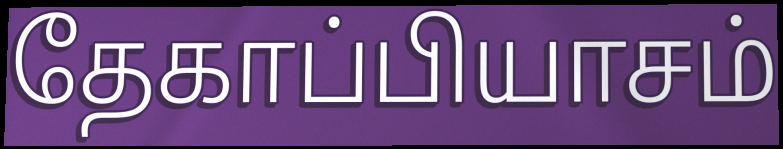
தேகாப்பியாசம்